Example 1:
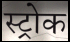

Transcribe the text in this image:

स्ट्रोक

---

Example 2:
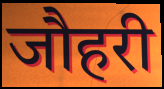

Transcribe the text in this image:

जौहरी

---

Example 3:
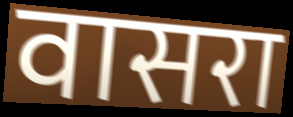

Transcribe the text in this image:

वासरा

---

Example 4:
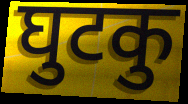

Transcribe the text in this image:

घुटकु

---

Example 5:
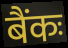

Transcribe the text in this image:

बैंकः